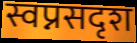
स्वप्नसदृश